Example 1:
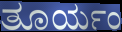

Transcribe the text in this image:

ತೂರ್ಯಂ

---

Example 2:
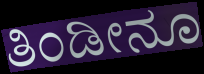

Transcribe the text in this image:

ತಿಂಡೀನೂ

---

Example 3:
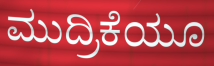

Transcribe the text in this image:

ಮುದ್ರಿಕೆಯೂ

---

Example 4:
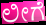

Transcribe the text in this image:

ಲೀಗೆ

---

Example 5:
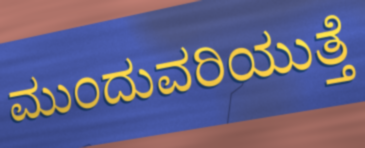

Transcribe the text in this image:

ಮುಂದುವರಿಯುತ್ತೆ